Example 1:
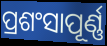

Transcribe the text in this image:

ପ୍ରଶଂସାପୂର୍ଣ୍ଣ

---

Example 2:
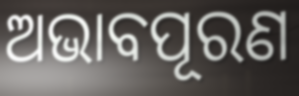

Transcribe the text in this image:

ଅଭାବପୂରଣ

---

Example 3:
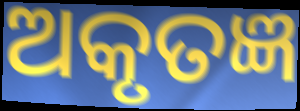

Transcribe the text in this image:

ଅକୃତଜ୍ଞ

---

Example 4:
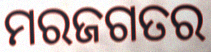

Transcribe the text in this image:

ମରଜଗତର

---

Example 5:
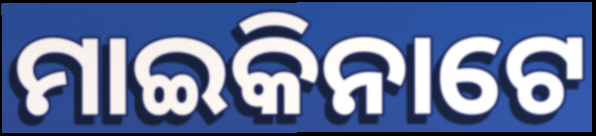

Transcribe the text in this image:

ମାଇକିନାଟେ